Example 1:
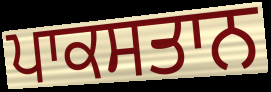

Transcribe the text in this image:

ਪਾਕਸਤਾਨ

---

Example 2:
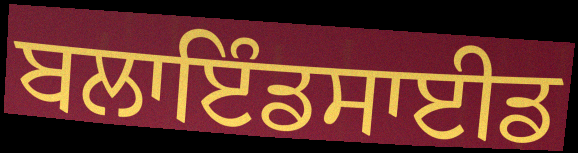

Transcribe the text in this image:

ਬਲਾਇੰਡਸਾਈਡ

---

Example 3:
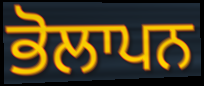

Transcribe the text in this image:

ਭੋਲਾਪਨ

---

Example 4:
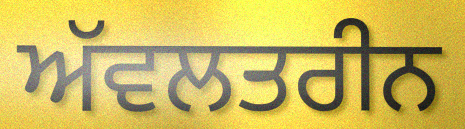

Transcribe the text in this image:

ਅੱਵਲਤਰੀਨ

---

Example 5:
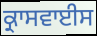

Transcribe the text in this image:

ਕ੍ਰਾਸਵਾਈਸ